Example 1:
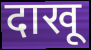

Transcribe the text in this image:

दाखू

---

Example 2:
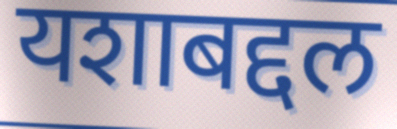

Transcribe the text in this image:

यशाबद्दल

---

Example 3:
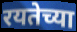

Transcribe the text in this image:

रयतेच्या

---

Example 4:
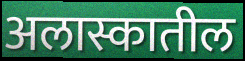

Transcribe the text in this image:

अलास्कातील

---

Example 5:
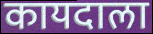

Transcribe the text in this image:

कायदाला